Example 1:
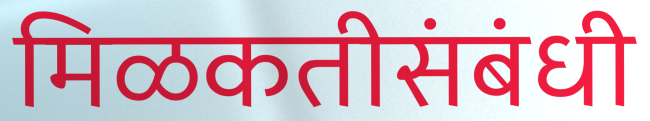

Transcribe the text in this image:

मिळकतीसंबंधी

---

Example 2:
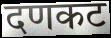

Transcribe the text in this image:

दणकट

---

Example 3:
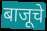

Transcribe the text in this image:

बाजूचे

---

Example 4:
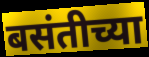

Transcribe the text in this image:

बसंतीच्या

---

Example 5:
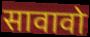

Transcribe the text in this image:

सावावो